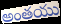
అంతయు